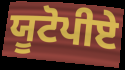
ਯੂਟੋਪੀਏ